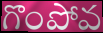
గొంపోవ